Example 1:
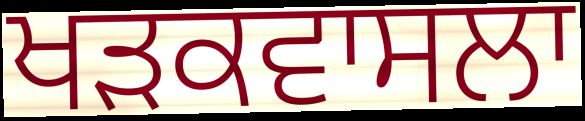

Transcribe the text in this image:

ਖੜਕਵਾਸਲਾ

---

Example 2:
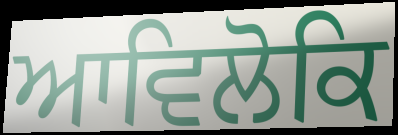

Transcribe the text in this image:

ਆਵਿਲੋਕਿ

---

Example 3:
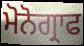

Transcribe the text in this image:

ਮੋਨੋਗ੍ਰਾਫ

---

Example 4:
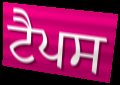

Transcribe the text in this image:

ਟੈਪਸ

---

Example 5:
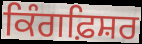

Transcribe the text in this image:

ਕਿੰਗਫ਼ਿਸ਼ਰ